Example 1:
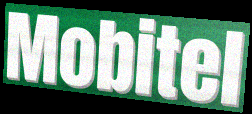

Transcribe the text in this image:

Mobitel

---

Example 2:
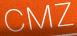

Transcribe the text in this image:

CMZ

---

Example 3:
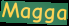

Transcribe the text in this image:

Magga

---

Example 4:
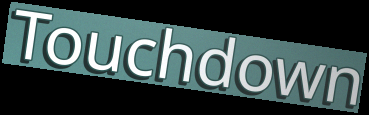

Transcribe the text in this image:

Touchdown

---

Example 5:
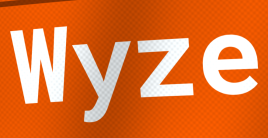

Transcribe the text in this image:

Wyze